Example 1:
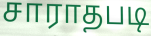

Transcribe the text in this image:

சாராதபடி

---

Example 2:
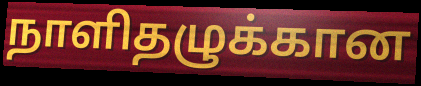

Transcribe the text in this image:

நாளிதழுக்கான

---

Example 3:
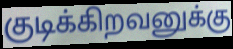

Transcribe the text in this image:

குடிக்கிறவனுக்கு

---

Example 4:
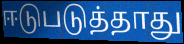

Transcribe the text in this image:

ஈடுபடுத்தாது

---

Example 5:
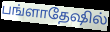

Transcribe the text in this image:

பங்ளாதேஷில்